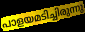
പാളയമടിച്ചിരുന്നു